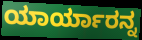
ಯಾರ್ಯಾರನ್ನ